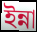
ইন্না